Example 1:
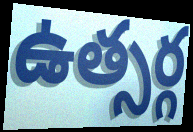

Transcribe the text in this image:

ఉత్సర్గ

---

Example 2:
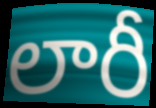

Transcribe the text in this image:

లారీ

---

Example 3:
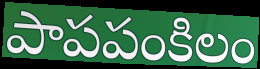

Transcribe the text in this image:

పాపపంకిలం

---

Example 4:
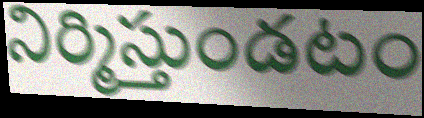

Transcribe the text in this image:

నిర్మిస్తుండటం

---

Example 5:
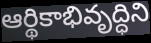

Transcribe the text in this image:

ఆర్థికాభివృద్ధిని